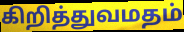
கிறித்துவமதம்